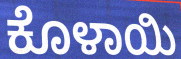
ಕೊಳಾಯಿ